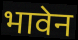
भावेन